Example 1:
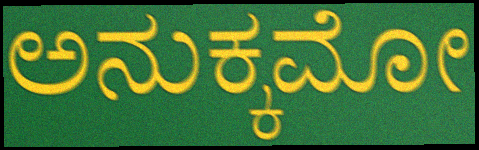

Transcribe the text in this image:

ಅನುಕ್ಕಮೋ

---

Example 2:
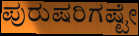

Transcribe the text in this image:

ಪುರುಷರಿಗಷ್ಟೇ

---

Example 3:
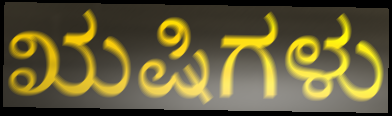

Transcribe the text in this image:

ಋಷಿಗಳು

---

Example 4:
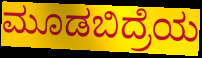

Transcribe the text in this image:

ಮೂಡಬಿದ್ರೆಯ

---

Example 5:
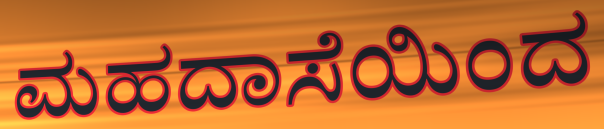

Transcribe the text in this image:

ಮಹದಾಸೆಯಿಂದ